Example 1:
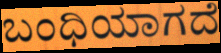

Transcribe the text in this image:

ಬಂಧಿಯಾಗದೆ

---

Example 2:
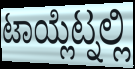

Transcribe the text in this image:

ಟಾಯ್ಲೆಟ್ನಲ್ಲಿ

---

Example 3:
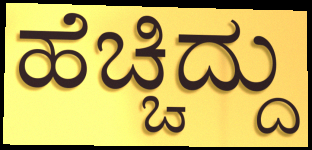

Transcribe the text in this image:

ಹೆಚ್ಚಿದ್ದು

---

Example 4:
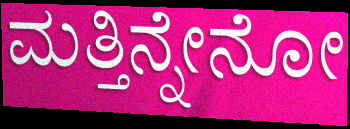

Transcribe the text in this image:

ಮತ್ತಿನ್ನೇನೋ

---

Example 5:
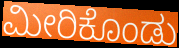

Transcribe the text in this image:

ಮೀರಿಕೊಂಡು